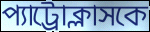
প্যাট্রোক্লাসকে